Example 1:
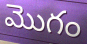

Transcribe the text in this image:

మొగం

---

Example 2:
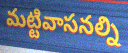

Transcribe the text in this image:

మట్టివాసనల్ని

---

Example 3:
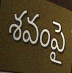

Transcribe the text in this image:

శవంపై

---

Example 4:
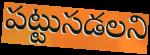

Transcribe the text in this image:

పట్టుసడలని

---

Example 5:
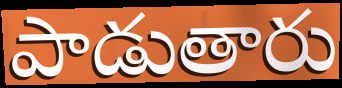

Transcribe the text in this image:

పాడుతారు